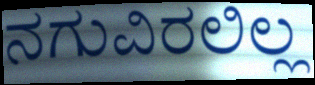
ನಗುವಿರಲಿಲ್ಲ